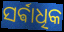
ସର୍ଵାଧିକ